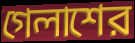
গেলাশের